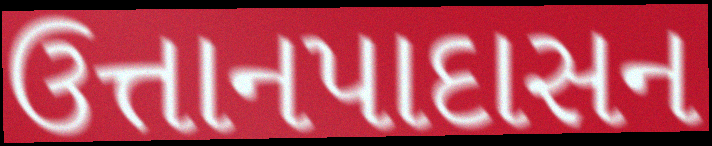
ઉત્તાનપાદાસન